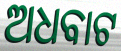
ଅଧବାଟ